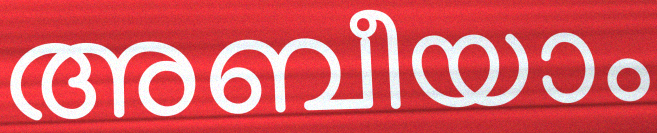
അബീയാം